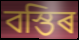
বস্তিৰ